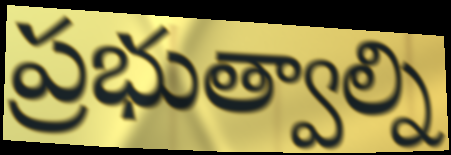
ప్రభుత్వాల్ని